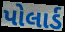
પોલાર્ડ